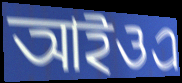
আইওএ